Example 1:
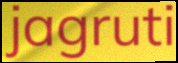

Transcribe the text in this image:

jagruti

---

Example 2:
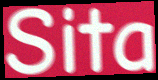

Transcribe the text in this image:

Sita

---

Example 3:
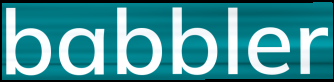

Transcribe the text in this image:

babbler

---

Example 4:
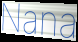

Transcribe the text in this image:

Nana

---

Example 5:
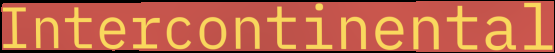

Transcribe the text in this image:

Intercontinental